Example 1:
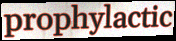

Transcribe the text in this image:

prophylactic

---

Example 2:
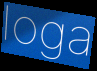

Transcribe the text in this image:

loga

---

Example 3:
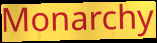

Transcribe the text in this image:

Monarchy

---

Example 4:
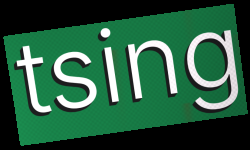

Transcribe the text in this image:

tsing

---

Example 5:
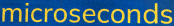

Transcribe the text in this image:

microseconds